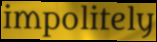
impolitely